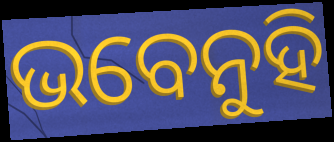
ଭବେନୁହି